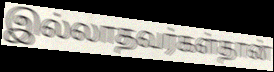
இல்லாதவர்கள்தான்